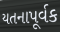
યતનાપૂર્વક